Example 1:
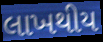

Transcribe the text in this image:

લાખથીય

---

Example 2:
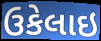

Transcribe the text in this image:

ઉકેલાઇ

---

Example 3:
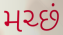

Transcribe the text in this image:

મચ્છં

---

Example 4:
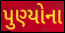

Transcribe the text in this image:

પુણ્યોના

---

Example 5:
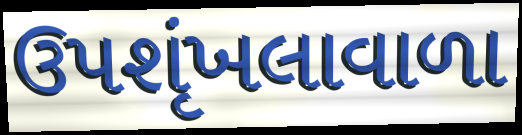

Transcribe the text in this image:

ઉપશૃંખલાવાળા